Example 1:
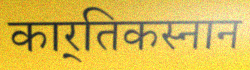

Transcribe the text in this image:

कार्तिकस्नान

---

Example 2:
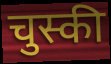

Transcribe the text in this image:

चुस्की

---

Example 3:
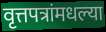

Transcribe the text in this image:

वृत्तपत्रांमधल्या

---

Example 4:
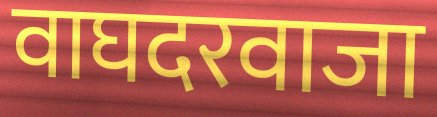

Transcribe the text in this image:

वाघदरवाजा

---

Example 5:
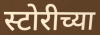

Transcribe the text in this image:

स्टोरीच्या